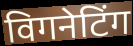
विगनेटिंग